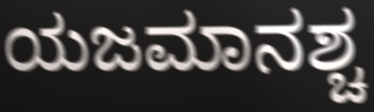
ಯಜಮಾನಶ್ಚ